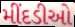
મીંદડીઓ